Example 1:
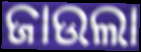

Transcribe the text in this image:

ଜାଉଲା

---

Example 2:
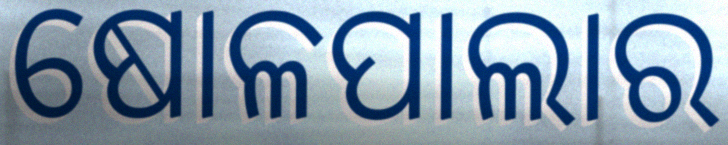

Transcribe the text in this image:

ଷୋଳପାଲାର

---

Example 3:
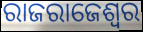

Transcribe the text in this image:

ରାଜରାଜେଶ୍ଵର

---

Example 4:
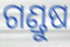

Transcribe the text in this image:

ଗଣ୍ଡୁଷ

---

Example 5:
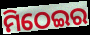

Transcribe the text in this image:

ମିଠେଇର